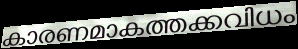
കാരണമാകത്തക്കവിധം